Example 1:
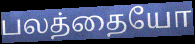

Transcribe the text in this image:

பலத்தையோ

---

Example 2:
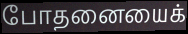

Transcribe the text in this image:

போதனையைக்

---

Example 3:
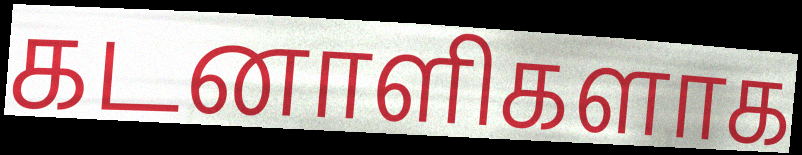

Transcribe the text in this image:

கடனாளிகளாக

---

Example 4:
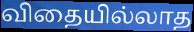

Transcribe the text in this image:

விதையில்லாத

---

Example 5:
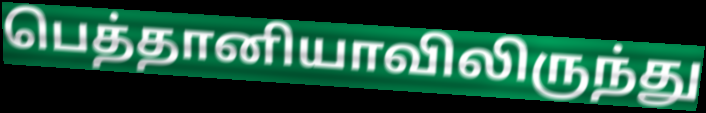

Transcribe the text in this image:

பெத்தானியாவிலிருந்து